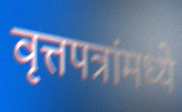
वृत्तपत्रांमध्ये